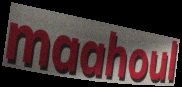
maahoul